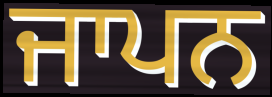
ਜਾਪਨ